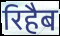
रिहैब